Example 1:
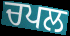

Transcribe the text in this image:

ਚਪਲ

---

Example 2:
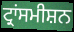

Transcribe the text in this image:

ਟ੍ਰਾਂਸਮੀਸ਼ਨ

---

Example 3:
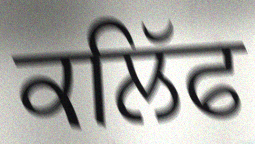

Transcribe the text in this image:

ਕਲਿੱਫ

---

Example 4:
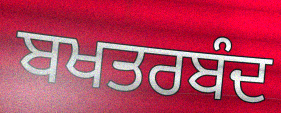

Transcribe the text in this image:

ਬਖਤਰਬੰਦ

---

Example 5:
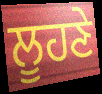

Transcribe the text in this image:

ਲੂਹਣੇ